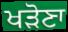
ਖੜੋਣਾ